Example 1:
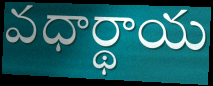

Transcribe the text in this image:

వధార్థాయ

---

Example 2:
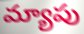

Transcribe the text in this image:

మ్యాపు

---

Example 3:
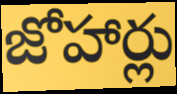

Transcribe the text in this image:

జోహార్లు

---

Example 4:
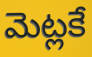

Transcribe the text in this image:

మెట్లకే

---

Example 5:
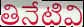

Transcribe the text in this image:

తినేటివి